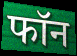
फॉन